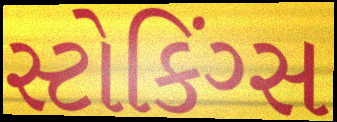
સ્ટોકિંગ્સ